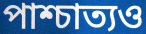
পাশ্চাত্যও